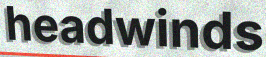
headwinds